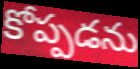
కోప్పడను